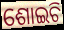
ଶୋଇଚି